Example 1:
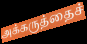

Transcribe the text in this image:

அக்கருத்தைச்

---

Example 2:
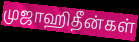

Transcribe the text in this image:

முஜாஹிதீன்கள்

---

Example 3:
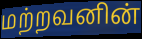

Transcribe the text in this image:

மற்றவனின்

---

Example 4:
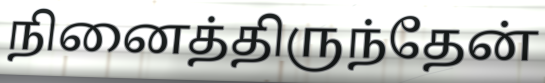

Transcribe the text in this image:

நினைத்திருந்தேன்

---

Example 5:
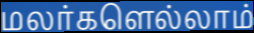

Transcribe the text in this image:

மலர்களெல்லாம்